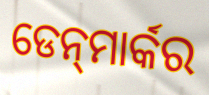
ଡେନ୍‍ମାର୍କର